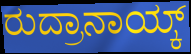
ರುದ್ರಾನಾಯ್ಕ್